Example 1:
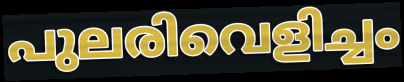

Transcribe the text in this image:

പുലരിവെളിച്ചം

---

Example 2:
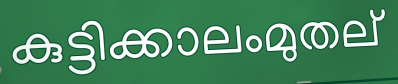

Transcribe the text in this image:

കുട്ടിക്കാലംമുതല്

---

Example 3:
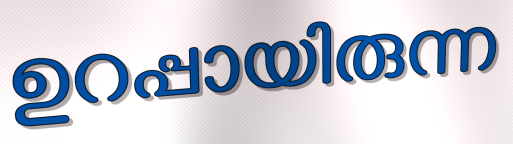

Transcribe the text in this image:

ഉറപ്പായിരുന്ന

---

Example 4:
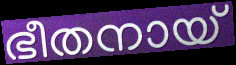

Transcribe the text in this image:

ഭീതനായ്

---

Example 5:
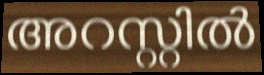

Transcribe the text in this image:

അറസ്റ്റിൽ